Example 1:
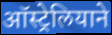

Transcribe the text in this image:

ऑस्ट्रेलियाने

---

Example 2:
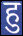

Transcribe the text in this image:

हु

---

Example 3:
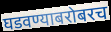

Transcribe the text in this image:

घडवण्याबरोबरच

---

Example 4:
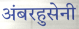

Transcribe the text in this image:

अंबरहुसेनी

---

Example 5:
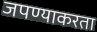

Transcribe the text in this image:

जपण्याकरता